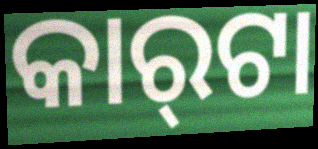
କାର୍‍ଟା